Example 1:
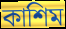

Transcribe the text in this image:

কাশিম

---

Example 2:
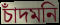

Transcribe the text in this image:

চাঁদমনি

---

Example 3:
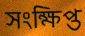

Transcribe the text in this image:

সংক্ষিপ্ত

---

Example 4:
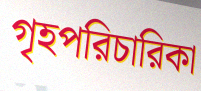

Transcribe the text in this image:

গৃহপরিচারিকা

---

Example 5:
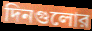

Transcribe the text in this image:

দিনগুলোর